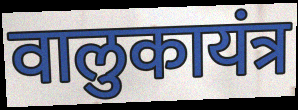
वालुकायंत्र